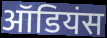
ऑडियंस